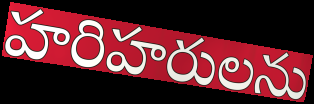
హరిహరులను